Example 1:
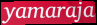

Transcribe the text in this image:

yamaraja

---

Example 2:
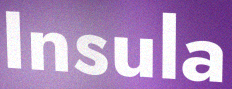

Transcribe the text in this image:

Insula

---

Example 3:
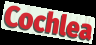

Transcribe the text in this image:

Cochlea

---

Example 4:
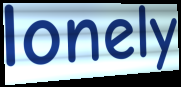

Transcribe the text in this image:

lonely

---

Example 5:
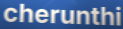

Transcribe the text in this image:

cherunthi